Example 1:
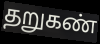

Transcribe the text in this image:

தறுகண்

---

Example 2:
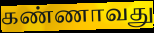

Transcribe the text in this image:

கண்ணாவது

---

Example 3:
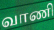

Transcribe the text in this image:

வாணி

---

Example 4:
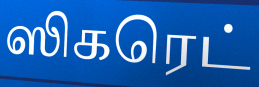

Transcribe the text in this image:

ஸிகரெட்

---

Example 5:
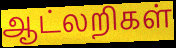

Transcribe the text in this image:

ஆட்லறிகள்